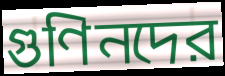
গুণিনদের